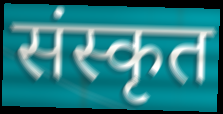
संस्कृत